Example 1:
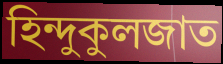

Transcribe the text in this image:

হিন্দুকুলজাত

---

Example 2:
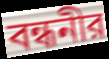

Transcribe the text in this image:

বন্ধনীর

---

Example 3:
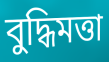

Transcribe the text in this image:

বুদ্ধিমত্তা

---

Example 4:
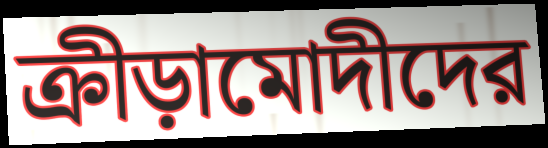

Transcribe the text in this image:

ক্রীড়ামোদীদের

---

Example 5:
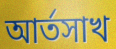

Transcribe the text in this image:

আর্তসাখ